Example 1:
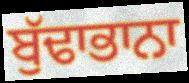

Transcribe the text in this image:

ਬੁੱਢਾਭਾਨਾ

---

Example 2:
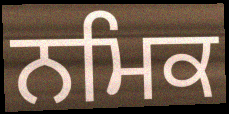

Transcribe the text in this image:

ਨਮਿਕ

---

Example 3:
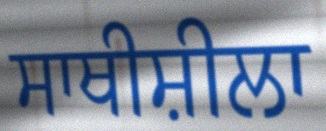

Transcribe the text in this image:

ਸਾਥੀਸ਼ੀਲਾ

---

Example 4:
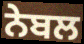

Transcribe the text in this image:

ਨੇਬਲ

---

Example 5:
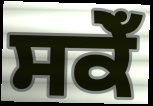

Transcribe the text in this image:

ਸਕੇਁ